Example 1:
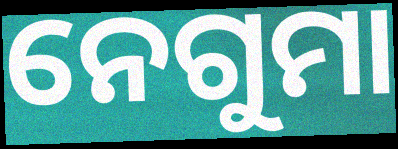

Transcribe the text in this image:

ନେଗୁମା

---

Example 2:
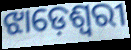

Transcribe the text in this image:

ଝାଡ଼େଶ୍ୱରୀ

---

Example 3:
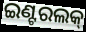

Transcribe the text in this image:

ଇଣ୍ଟରଲକ୍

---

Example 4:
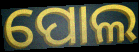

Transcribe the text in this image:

ପୋଲ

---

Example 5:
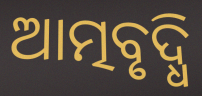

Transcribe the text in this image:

ଆତ୍ମବୃଦ୍ଧି